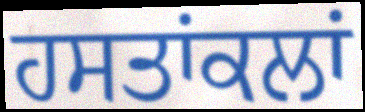
ਹਸਤਾਂਕਲਾਂ